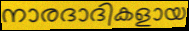
നാരദാദികളായ